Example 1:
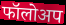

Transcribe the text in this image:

फॉलोअप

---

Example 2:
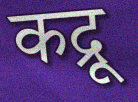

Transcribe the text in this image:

कद्रू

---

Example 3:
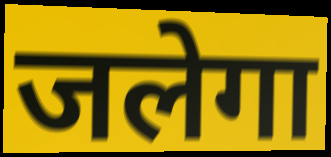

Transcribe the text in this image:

जलेगा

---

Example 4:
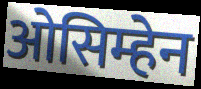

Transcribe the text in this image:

ओसिम्हेन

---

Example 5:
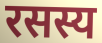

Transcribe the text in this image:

रसस्य